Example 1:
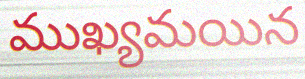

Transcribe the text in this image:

ముఖ్యమయిన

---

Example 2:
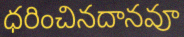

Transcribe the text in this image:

ధరించినదానవూ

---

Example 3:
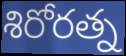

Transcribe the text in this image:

శిరోరత్న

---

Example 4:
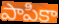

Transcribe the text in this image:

పాపికా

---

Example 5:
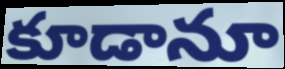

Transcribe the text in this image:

కూడానూ